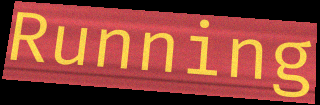
Running